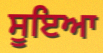
ਸੂਇਆ